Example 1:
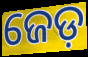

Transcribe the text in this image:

ଜେଡ଼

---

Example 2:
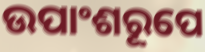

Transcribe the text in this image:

ଉପାଂଶରୂପେ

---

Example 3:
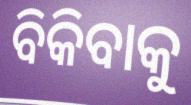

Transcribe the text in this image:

ବିକିବାକୁ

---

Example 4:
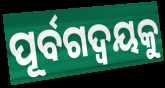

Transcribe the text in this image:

ପୂର୍ବଗଦ୍ଵୟକୁ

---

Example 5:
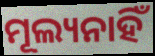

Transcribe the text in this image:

ମୂଲ୍ୟନାହିଁ